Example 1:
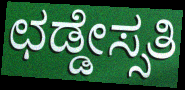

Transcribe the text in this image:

ಛಡ್ಡೇಸ್ಸತಿ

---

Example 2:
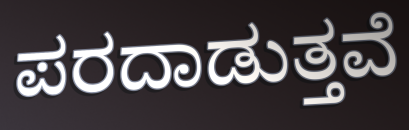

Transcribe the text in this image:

ಪರದಾಡುತ್ತವೆ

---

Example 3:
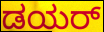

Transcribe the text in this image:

ಡಯರ್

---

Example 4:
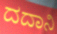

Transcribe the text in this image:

ದದಾನಿ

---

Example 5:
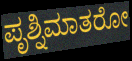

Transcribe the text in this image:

ಪೃಶ್ನಿಮಾತರೋ